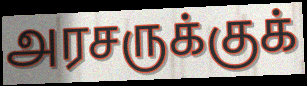
அரசருக்குக்